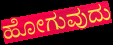
ಹೋಗುವುದು